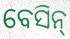
ବେସିନ୍